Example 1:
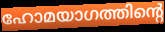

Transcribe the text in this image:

ഹോമയാഗത്തിന്റെ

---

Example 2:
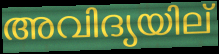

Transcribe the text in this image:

അവിദ്യയില്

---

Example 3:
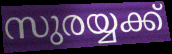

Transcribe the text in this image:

സുരയ്യക്ക്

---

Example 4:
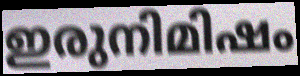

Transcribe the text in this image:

ഇരുനിമിഷം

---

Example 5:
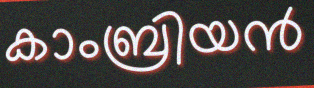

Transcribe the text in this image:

കാംബ്രിയൻ